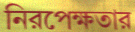
নিরপেক্ষতার